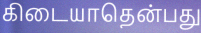
கிடையாதென்பது